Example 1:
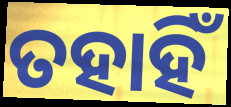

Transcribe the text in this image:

ତହାହିଁ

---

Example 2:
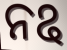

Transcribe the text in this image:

ନୡ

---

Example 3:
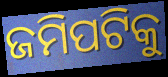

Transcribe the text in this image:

ଜମିପଟିକୁ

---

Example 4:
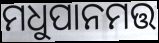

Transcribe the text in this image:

ମଧୁପାନମତ୍ତ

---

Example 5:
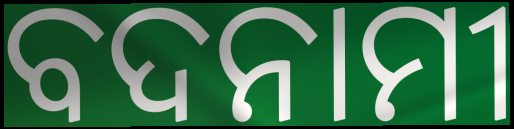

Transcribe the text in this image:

ବଦନାମୀ